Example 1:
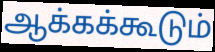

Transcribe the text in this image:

ஆக்கக்கூடும்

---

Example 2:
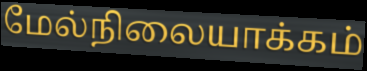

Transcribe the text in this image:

மேல்நிலையாக்கம்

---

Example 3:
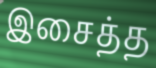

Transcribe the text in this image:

இசைத்த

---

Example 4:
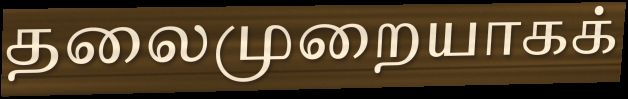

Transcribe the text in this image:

தலைமுறையாகக்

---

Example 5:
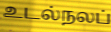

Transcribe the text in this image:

உடல்நலப்